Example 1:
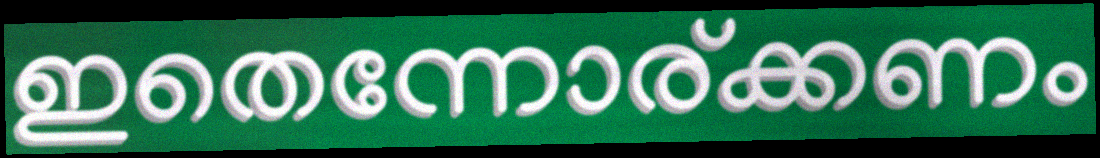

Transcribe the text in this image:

ഇതെന്നോര്ക്കണം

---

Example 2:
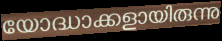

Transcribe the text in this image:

യോദ്ധാക്കളായിരുന്നു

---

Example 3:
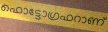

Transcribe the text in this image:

ഫൊട്ടോഗ്രഫറാണ്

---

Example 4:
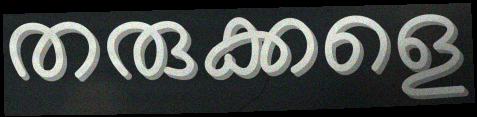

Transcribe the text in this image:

തരുക്കളെ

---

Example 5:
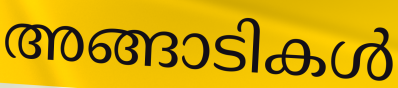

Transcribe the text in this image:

അങ്ങാടികൾ